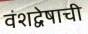
वंशद्वेषाची